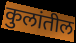
कुलांतील